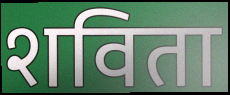
शविता